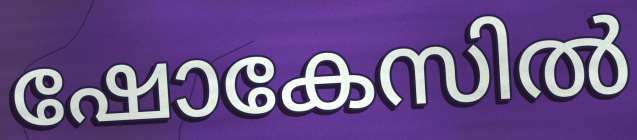
ഷോകേസിൽ